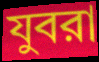
যুবরা